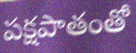
పక్షపాతంతో